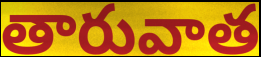
తారువాత